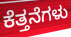
ಕೆತ್ತನೆಗಳು